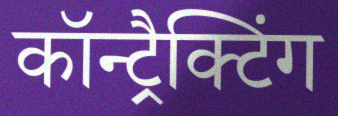
कॉन्ट्रैक्टिंग